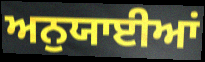
ਅਨੁਯਾਈਆਂ